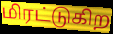
மிரட்டுகிற